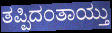
ತಪ್ಪಿದಂತಾಯ್ತು